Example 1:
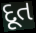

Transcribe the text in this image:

દૂત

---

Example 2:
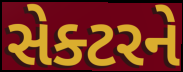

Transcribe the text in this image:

સેક્ટરને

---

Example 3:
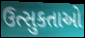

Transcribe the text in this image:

ઉત્સુકતાઓ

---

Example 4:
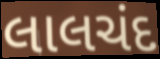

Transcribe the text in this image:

લાલચંદ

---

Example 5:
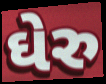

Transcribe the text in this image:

ઘેરુ